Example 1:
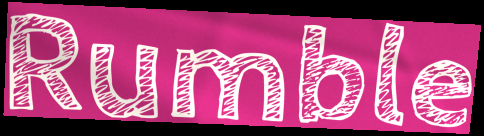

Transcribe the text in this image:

Rumble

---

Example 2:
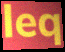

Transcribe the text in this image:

leq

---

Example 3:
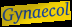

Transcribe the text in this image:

Gynaecol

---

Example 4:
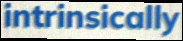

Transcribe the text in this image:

intrinsically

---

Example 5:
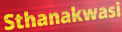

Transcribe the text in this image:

Sthanakwasi